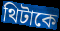
থিটাকে